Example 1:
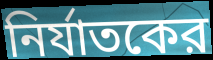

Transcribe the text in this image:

নির্যাতকের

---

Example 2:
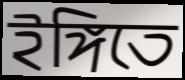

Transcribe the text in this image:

ইঙ্গিতে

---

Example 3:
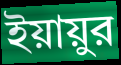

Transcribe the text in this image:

ইয়ায়ুর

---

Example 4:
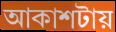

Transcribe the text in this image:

আকাশটায়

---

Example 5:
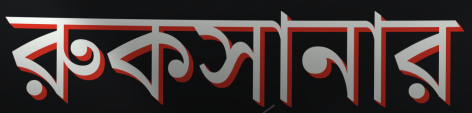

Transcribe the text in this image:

রুকসানার